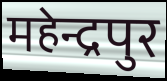
महेन्द्रपुर